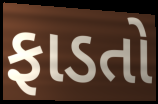
ફાડતો